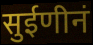
सुईणीनं